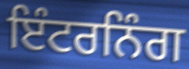
ਇੰਟਰਨਿੰਗ